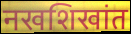
नखशिखांत